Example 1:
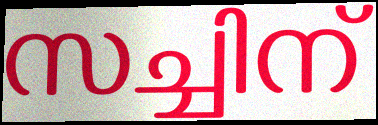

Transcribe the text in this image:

സച്ചിന്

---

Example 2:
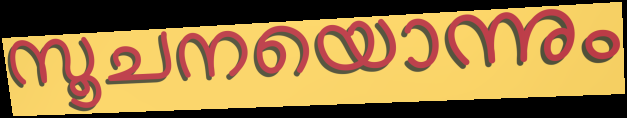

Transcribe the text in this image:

സൂചനയൊന്നും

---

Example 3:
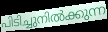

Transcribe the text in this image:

പിടിച്ചുനിൽക്കുന്ന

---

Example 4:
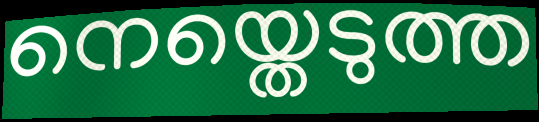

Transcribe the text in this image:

നെയ്തെടുത്ത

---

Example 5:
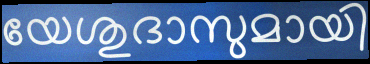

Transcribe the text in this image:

യേശുദാസുമായി